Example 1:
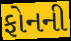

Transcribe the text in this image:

ફોનની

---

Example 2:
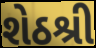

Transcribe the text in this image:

શેઠશ્રી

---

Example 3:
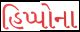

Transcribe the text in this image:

હિપ્પોના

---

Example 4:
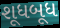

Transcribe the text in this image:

શૂધબૂધ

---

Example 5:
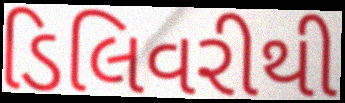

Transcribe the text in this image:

ડિલિવરીથી